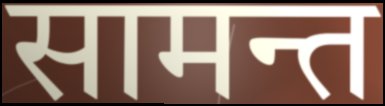
सामन्त